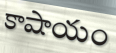
కాషాయం